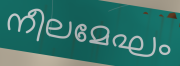
നീലമേഘം